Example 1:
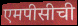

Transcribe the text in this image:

एमपीसीची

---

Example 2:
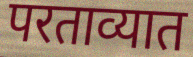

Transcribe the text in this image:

परताव्यात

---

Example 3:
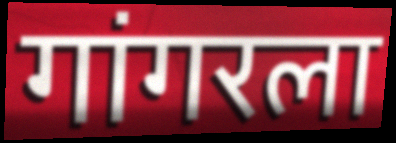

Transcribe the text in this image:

गांगरला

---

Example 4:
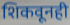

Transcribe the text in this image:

शिकवूनही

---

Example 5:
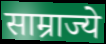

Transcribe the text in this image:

साम्राज्ये